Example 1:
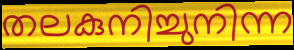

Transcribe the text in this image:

തലകുനിച്ചുനിന്ന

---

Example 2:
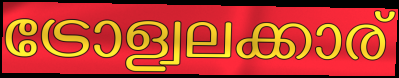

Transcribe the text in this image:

ട്രോള്വലക്കാര്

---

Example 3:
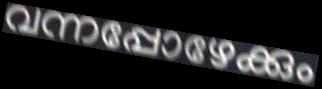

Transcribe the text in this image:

വന്നപ്പോഴേക്കും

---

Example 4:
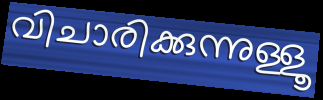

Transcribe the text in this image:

വിചാരിക്കുന്നുള്ളൂ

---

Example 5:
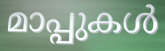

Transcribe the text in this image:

മാപ്പുകൾ